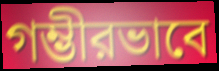
গম্ভীরভাবে